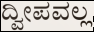
ದ್ವೀಪವಲ್ಲ